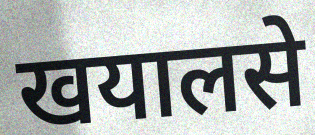
खयालसे